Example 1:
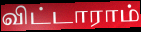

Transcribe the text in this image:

விட்டாராம்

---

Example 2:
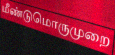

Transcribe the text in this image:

மீண்டுமொருமுறை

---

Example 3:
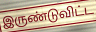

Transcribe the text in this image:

இருண்டுவிட்ட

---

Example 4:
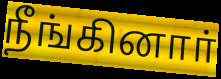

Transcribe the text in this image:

நீங்கினார்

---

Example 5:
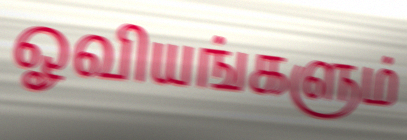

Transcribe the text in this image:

ஓவியங்களும்